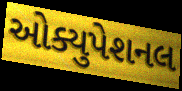
ઓક્યુપેશનલ